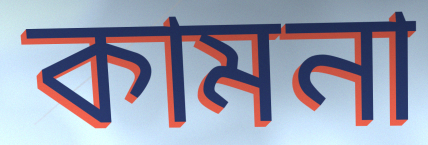
কামনা